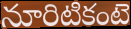
నూరిటికంటె